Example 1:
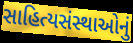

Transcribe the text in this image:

સાહિત્યસંસ્થાઓનું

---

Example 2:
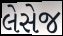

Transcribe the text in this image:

લેસેજ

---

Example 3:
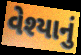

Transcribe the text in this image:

વેશ્યાનું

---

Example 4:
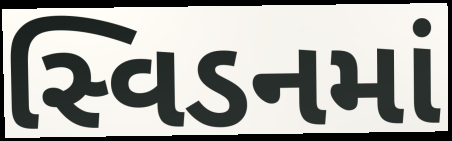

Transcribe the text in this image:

સ્વિડનમાં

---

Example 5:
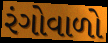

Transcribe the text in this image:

રંગોવાળો